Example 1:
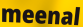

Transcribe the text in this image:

meenal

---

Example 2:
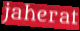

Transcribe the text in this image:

jaherat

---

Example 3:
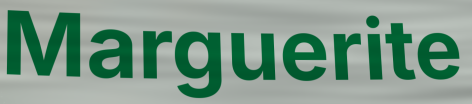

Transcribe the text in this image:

Marguerite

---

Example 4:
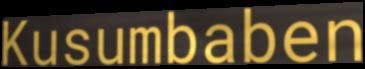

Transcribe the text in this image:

Kusumbaben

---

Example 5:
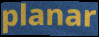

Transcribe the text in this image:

planar